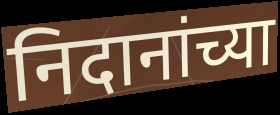
निदानांच्या